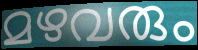
മഴവരും